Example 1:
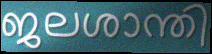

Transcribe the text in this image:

ജലശാന്തി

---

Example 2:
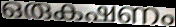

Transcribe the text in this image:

ഒരുകഷണം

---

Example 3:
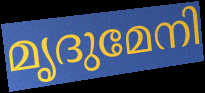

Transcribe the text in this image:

മൃദുമേനി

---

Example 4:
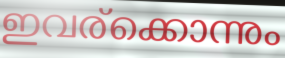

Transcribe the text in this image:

ഇവര്ക്കൊന്നും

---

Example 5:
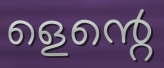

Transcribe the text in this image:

ളെന്റെ